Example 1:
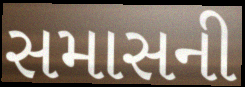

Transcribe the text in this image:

સમાસની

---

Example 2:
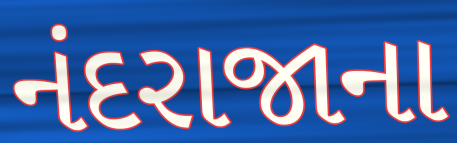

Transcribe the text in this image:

નંદરાજાના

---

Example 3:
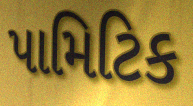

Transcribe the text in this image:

પામિટિક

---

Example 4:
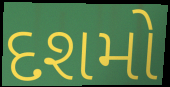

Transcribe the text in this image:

દશમો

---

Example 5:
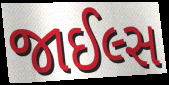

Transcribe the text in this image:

જાઈલ્સ